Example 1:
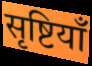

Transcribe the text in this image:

सृष्टियाँ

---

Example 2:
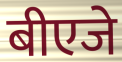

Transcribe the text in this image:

बीएजे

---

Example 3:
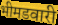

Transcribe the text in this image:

भीमडवारी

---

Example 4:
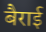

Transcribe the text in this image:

बैराई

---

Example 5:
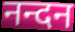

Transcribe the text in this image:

नन्‍दन